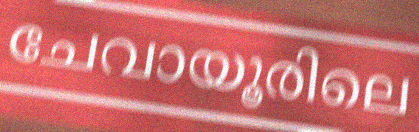
ചേവായൂരിലെ